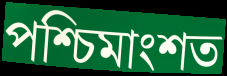
পশ্চিমাংশত